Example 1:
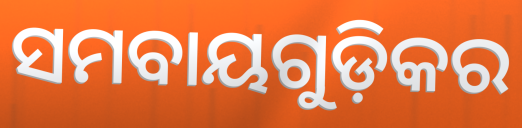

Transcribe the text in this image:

ସମବାୟଗୁଡ଼ିକର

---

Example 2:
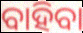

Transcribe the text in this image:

ବାହିବା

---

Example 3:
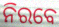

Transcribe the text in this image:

ନିରବେ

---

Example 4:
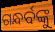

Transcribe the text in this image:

ଗନ୍ଧର୍ବଙ୍କୁ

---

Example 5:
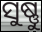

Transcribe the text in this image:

ସୁଷ୍ଣୁ